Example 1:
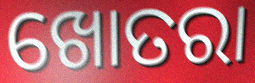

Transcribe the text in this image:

ଖୋତରା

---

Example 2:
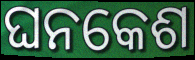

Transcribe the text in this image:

ଘନକେଶ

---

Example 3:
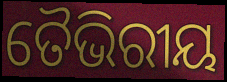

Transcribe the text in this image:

ତୈଭିରୀୟ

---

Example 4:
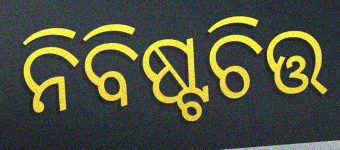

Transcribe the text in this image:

ନିବିଷ୍ଟଚିତ୍ତ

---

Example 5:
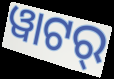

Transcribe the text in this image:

ୱାଟର୍